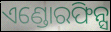
ଏଣ୍ଡୋରଫିନ୍ସ